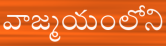
వాజ్మయంలోని